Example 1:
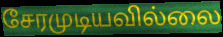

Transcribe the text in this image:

சேரமுடியவில்லை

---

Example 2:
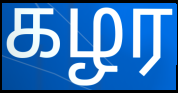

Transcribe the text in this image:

கழர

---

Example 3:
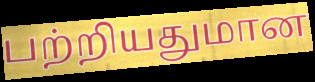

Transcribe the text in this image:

பற்றியதுமான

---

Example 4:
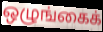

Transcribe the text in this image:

ஒழுங்கைக்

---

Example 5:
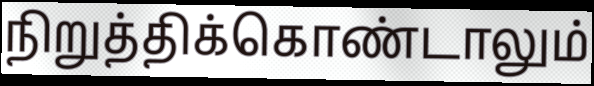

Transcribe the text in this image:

நிறுத்திக்கொண்டாலும்